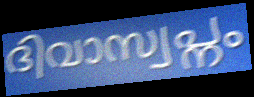
ദിവാസ്വപ്നം